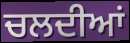
ਚਲਦੀਆਂ